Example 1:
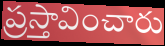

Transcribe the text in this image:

ప్రస్తావించారు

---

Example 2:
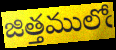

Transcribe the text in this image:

జిత్తములోఁ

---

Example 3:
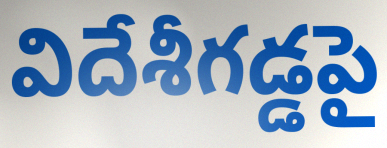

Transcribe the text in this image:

విదేశీగడ్డపై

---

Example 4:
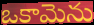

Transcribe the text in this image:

ఒకామెను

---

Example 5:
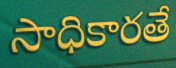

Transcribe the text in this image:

సాధికారతే